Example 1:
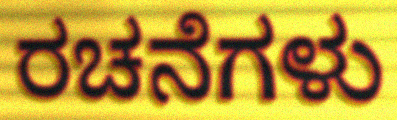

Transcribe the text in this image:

ರಚನೆಗಳು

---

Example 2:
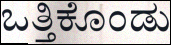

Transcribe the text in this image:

ಒತ್ತಿಕೊಂಡು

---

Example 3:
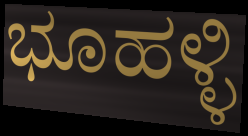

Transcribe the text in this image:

ಭೂಹಳ್ಳಿ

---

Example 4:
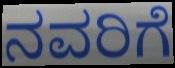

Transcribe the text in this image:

ನವರಿಗೆ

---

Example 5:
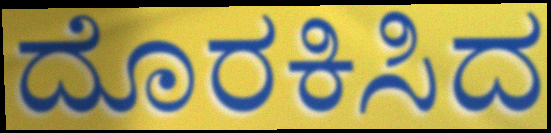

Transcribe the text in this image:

ದೊರಕಿಸಿದ